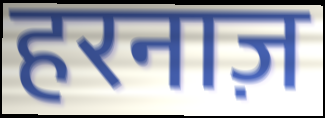
हरनाज़